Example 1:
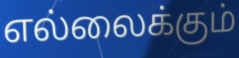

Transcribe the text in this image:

எல்லைக்கும்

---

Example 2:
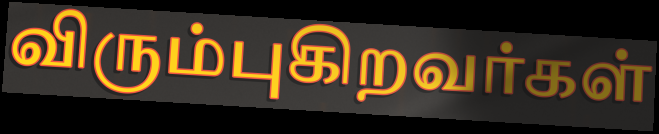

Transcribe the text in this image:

விரும்புகிறவர்கள்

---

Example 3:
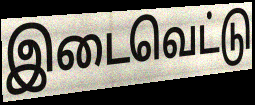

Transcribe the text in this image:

இடைவெட்டு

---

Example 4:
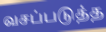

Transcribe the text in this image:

வசப்படுத்த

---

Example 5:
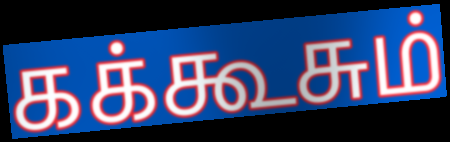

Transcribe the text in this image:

கக்கூசும்